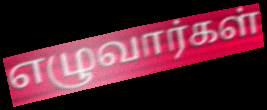
எழுவார்கள்